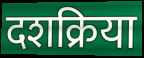
दशक्रिया